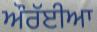
ਔਰੱਈਆ